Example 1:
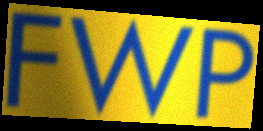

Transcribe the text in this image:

FWP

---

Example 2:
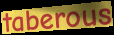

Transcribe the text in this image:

taberous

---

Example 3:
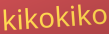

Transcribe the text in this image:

kikokiko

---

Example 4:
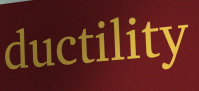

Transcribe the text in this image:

ductility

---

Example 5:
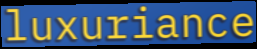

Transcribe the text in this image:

luxuriance